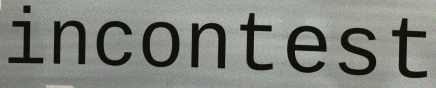
incontest